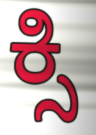
ಕ್ಸಿ